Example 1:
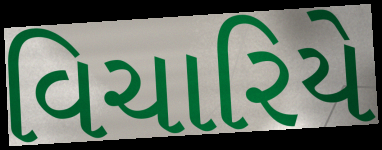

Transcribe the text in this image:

વિચારિયે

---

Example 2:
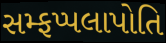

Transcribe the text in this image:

સમ્ફપ્પલાપોતિ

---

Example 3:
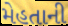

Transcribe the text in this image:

મેહતાની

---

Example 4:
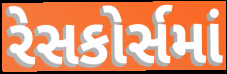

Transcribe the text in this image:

રેસકોર્સમાં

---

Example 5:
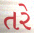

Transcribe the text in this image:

તરે